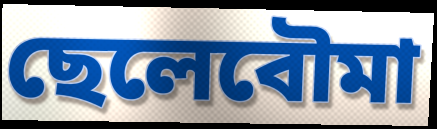
ছেলেবৌমা